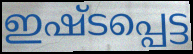
ഇഷ്ടപ്പെട്ട